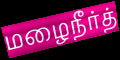
மழைநீர்த்